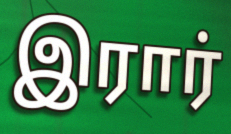
இரார்